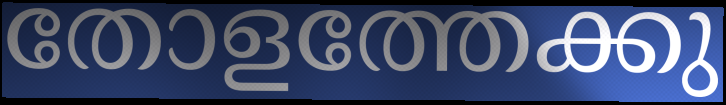
തോളത്തേക്കു